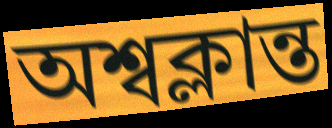
অশ্বক্লান্ত